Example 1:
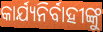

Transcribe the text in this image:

କାର୍ଯ୍ୟନିର୍ବାହୀଙ୍କୁ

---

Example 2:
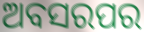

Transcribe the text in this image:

ଅବସରପର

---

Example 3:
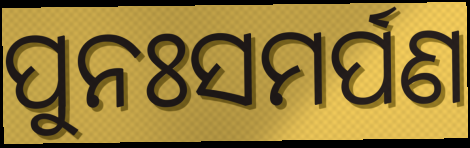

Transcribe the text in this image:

ପୁନଃସମର୍ପଣ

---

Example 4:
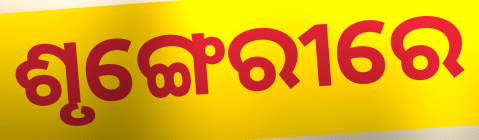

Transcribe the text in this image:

ଶୃଙ୍ଗେରୀରେ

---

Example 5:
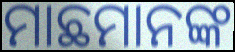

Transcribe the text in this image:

ମାଛମାନଙ୍କ